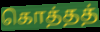
கொத்தத்